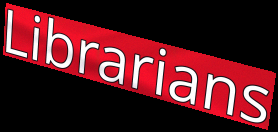
Librarians